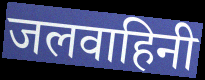
जलवाहिनी